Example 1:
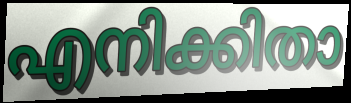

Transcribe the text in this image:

എനിക്കിതാ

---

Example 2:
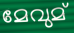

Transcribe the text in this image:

മേവുമ്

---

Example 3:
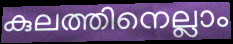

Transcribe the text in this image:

കുലത്തിനെല്ലാം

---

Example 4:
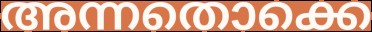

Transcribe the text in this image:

അന്നതൊക്കെ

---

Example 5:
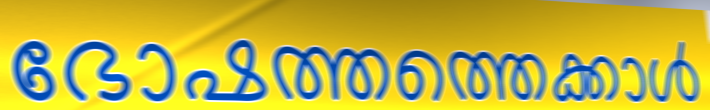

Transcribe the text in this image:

ഭോഷത്തത്തെക്കാൾ